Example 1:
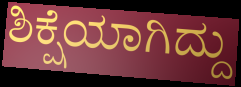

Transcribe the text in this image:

ಶಿಕ್ಷೆಯಾಗಿದ್ದು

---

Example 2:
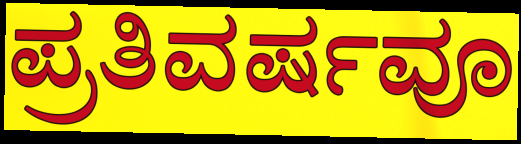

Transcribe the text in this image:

ಪ್ರತಿವರ್ಷವೂ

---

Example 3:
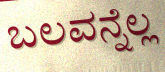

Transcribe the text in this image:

ಬಲವನ್ನೆಲ್ಲ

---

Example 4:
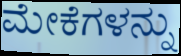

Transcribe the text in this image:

ಮೇಕೆಗಳನ್ನು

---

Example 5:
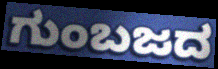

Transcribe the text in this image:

ಗುಂಬಜದ